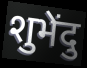
शुभेंदु